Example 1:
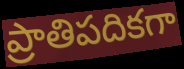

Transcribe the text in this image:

ప్రాతిపదికగా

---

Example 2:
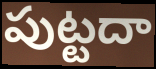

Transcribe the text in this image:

పుట్టదా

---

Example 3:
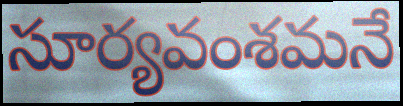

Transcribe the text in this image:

సూర్యవంశమనే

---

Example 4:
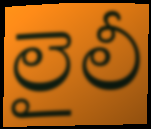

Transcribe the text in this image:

లైలీ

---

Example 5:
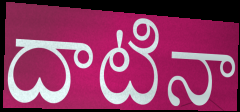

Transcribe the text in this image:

దాటినా